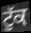
ਟੁੱਕ